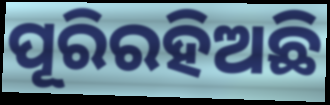
ପୂରିରହିଅଛି